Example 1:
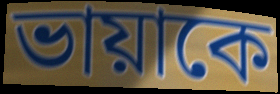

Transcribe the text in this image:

ভায়াকে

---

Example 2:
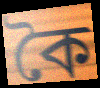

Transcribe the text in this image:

কৈ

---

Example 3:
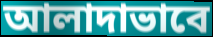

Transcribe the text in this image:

আলাদাভাবে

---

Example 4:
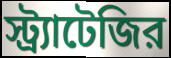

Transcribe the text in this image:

স্ট্র্যাটেজির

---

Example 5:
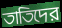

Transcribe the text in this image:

তাতিদের